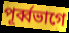
পূর্ব্বভাগে